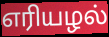
எரியழல்